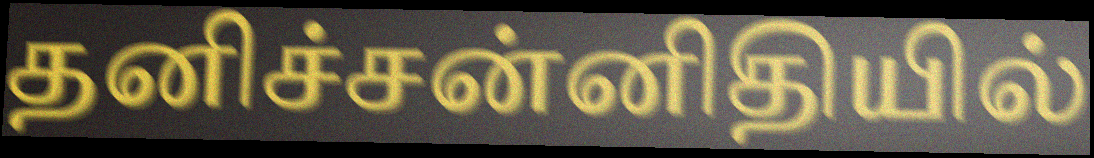
தனிச்சன்னிதியில்